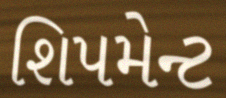
શિપમેન્ટ